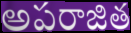
అపరాజిత